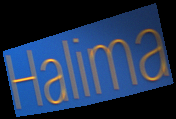
Halima